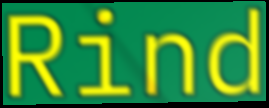
Rind